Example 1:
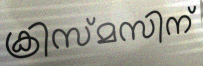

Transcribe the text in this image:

ക്രിസ്മസിന്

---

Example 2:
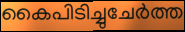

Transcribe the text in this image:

കൈപിടിച്ചുചേർത്ത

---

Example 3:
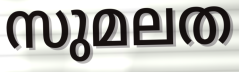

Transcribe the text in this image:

സുമലത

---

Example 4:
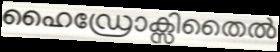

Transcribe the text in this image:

ഹൈഡ്രോക്സിതൈൽ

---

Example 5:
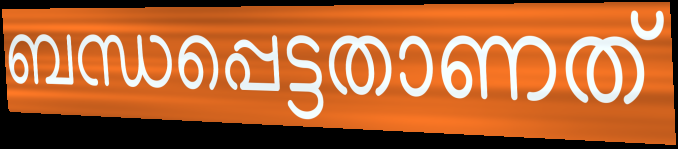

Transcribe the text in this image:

ബന്ധപ്പെട്ടതാണത്